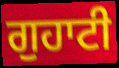
ਗੁਹਾਟੀ